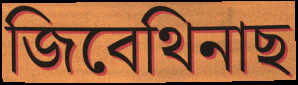
জিবেথিনাছ